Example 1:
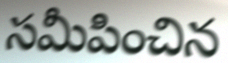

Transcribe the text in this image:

సమీపించిన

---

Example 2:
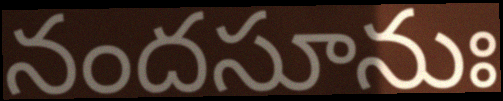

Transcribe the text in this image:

నందసూనుః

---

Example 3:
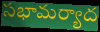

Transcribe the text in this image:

సభామర్యాద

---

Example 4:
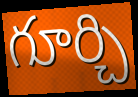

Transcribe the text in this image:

గూర్చి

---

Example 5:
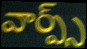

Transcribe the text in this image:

వార్ప్స్